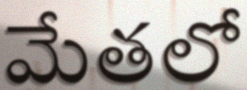
మేతలో